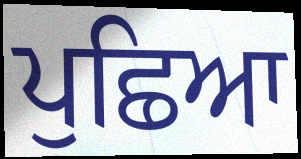
ਪੁਛਿਆ